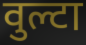
वुल्टा